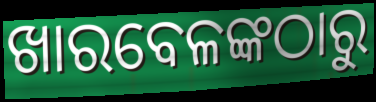
ଖାରବେଳଙ୍କଠାରୁ